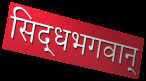
सिद्धभगवान्